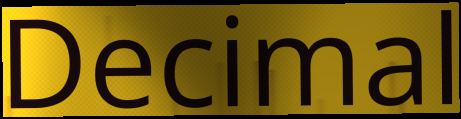
Decimal